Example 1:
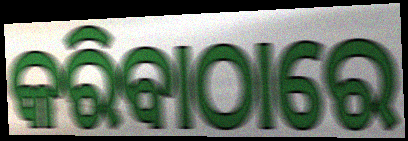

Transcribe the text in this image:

କରିବାଠାରେ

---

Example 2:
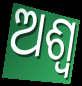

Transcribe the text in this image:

ଅଶ୍ବ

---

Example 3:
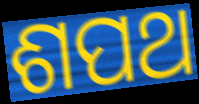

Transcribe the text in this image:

ଶପଥ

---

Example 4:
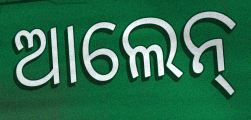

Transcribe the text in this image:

ଆଲେନ୍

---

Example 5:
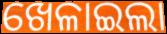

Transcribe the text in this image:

ଖେଳାଇଲା